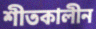
শীতকালীন